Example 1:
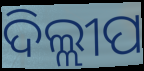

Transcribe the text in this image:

ଦିଲ୍ଲୀପ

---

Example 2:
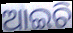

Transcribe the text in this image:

ଆଇଚି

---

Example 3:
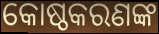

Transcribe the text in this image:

କୋଷ୍ଠକରଣଙ୍କ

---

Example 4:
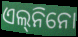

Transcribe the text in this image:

ଏଲ୍‌ନିନୋ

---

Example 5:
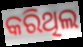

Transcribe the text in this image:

କରିଥିଲ